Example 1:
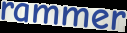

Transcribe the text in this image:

rammer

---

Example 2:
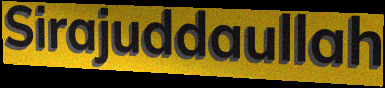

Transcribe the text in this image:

Sirajuddaullah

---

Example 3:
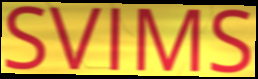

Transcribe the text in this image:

SVIMS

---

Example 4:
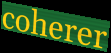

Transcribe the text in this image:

coherer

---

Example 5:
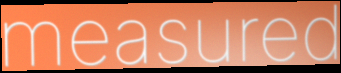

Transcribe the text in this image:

measured